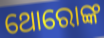
ଥୋରୋଙ୍କ